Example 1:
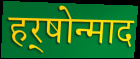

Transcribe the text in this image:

हर्षोन्माद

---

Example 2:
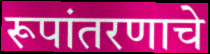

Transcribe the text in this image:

रूपांतरणाचे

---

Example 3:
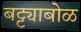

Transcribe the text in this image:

बट्ट्याबोळ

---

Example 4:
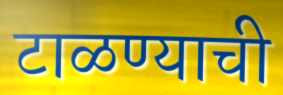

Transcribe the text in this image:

टाळण्याची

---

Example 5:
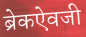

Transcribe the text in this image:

ब्रेकऐवजी